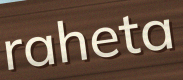
raheta